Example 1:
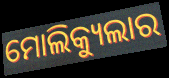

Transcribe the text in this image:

ମୋଲିକ୍ୟୁଲାର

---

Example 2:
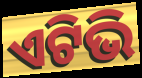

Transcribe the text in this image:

ଏଟିଭି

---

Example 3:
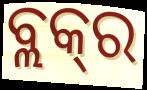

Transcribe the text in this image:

ବ୍ଲକ୍‍ର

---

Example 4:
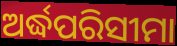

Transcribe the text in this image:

ଅର୍ଦ୍ଧପରିସୀମା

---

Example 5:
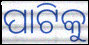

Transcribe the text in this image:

ପାଟିକୁ